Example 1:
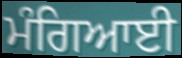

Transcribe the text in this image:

ਮੰਗਿਆਈ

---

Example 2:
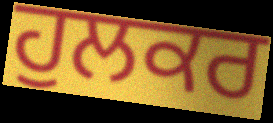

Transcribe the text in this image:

ਹੁਲਕਰ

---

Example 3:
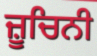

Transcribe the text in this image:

ਜ਼ੂਚਿਨੀ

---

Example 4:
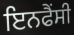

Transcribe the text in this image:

ਇਨਫੈਂਸੀ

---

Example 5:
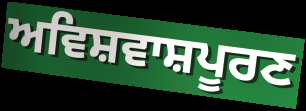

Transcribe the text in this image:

ਅਵਿਸ਼ਵਾਸ਼ਪੂਰਣ